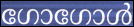
ഗോഗോൾ